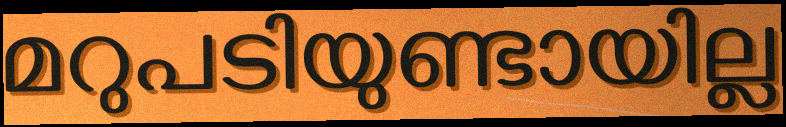
മറുപടിയുണ്ടായില്ല